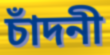
চাঁদনী